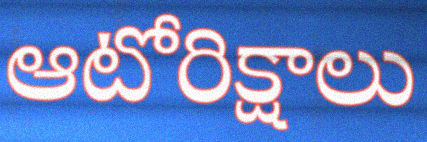
ఆటోరిక్షాలు